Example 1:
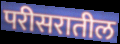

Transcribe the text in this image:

परीसरातील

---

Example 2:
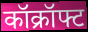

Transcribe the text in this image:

कॉक्रॉफ्ट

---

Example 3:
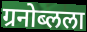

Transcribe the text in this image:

ग्रनोब्लला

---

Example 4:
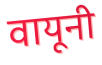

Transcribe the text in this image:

वायूनी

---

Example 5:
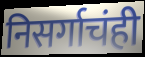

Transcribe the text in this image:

निसर्गाचंही